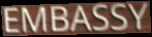
EMBASSY